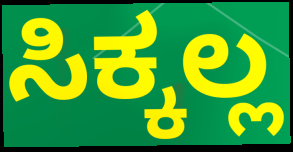
ಸಿಕ್ಕಲ್ಲ